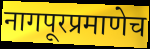
नागपूरप्रमाणेच